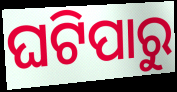
ଘଟିପାରୁ